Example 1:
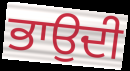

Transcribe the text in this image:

ਭਾਉਦੀ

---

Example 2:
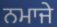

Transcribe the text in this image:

ਨਮਾਜੇ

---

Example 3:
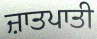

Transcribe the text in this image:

ਜ਼ਾਤਪਾਤੀ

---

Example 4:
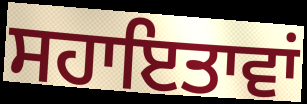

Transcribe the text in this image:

ਸਹਾਇਤਾਵਾਂ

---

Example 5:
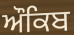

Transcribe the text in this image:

ਔਕਿਬ